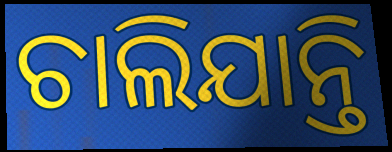
ଚାଲିଯାନ୍ତି